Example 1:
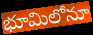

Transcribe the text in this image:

భూమిలోనూ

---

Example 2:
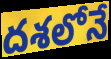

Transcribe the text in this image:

దశలోనే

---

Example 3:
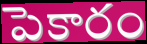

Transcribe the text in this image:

పెకారం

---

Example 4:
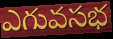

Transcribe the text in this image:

ఎగువసభ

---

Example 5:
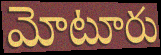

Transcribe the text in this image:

మోటూరు